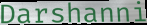
Darshanni